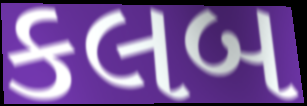
કલબ